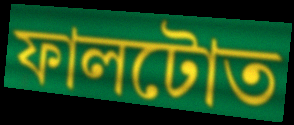
ফালটোত